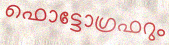
ഫൊട്ടോഗ്രഫറും